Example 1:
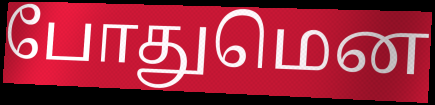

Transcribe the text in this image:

போதுமென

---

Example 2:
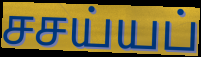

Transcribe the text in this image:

சசய்யப்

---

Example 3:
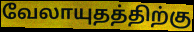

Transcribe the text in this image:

வேலாயுதத்திற்கு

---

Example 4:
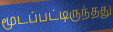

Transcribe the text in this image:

மூடப்பட்டிருந்தது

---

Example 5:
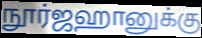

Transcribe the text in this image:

நூர்ஜஹானுக்கு